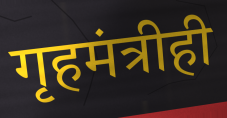
गृहमंत्रीही